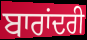
ਬਾਰਾਂਦਰੀ